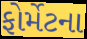
ફોર્મેટના